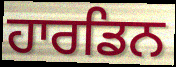
ਹਾਰਡਿਨ